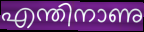
എന്തിനാണു